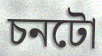
চনটো